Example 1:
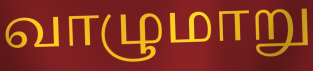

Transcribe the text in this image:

வாழுமாறு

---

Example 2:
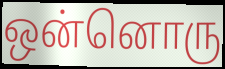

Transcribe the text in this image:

ஒன்னொரு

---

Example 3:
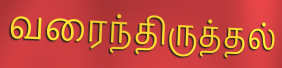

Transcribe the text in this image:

வரைந்திருத்தல்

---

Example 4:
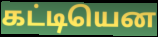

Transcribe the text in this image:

கட்டியென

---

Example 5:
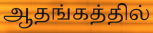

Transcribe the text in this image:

ஆதங்கத்தில்